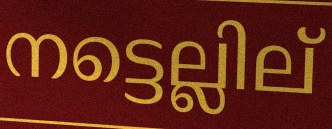
നട്ടെല്ലില്